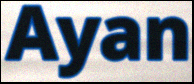
Ayan